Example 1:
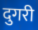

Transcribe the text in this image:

दुगरी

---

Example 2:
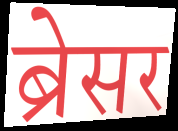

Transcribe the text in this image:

ब्रेसर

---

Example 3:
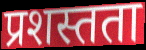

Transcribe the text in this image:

प्रशस्तता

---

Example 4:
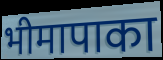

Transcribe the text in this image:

भीमापाका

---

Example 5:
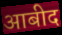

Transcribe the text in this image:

आबीद